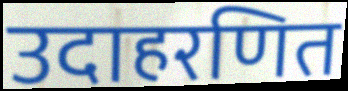
उदाहरणित